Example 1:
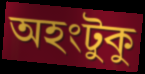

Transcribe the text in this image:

অহংটুকু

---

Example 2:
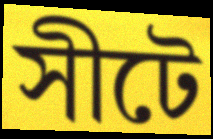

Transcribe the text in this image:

সীটে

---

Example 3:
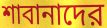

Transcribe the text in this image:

শাবানাদের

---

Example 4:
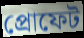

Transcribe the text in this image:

প্রোফেট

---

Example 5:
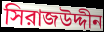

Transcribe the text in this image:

সিরাজউদ্দীন